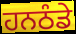
ਹਨਠੰਡੇ